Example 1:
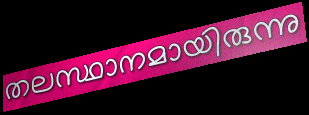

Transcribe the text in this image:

തലസ്ഥാനമായിരുന്നു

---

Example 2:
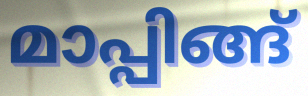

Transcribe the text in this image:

മാപ്പിങ്ങ്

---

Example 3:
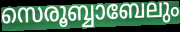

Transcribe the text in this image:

സെരൂബ്ബാബേലും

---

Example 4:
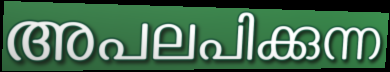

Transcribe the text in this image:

അപലപിക്കുന്ന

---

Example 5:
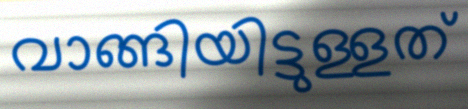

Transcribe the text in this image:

വാങ്ങിയിട്ടുള്ളത്